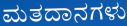
ಮತದಾನಗಳು